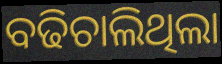
ବଢିଚାଲିଥିଲା